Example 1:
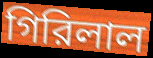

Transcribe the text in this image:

গিরিলাল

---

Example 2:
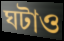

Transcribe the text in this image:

ঘটাও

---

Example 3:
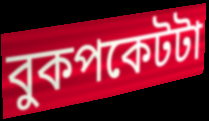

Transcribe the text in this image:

বুকপকেটটা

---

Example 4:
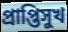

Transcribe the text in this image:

প্রাপ্তিসুখ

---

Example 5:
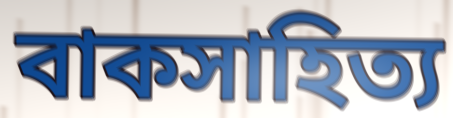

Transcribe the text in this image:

বাকসাহিত্য